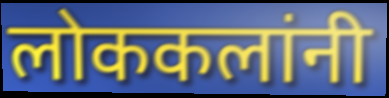
लोककलांनी